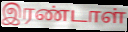
இரண்டாள்